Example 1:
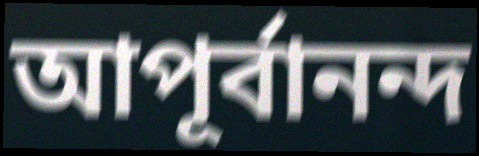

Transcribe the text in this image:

আপূর্বানন্দ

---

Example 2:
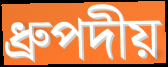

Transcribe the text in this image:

ধ্রুপদীয়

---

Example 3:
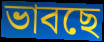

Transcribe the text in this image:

ভাবছে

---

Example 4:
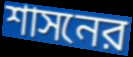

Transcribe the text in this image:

শাসনের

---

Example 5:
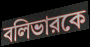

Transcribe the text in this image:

বলিভারকে